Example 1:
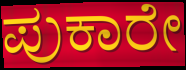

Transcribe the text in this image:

ಪುಕಾರೇ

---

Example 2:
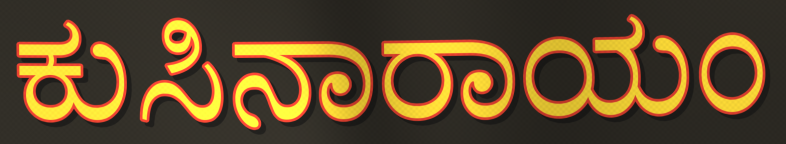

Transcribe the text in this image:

ಕುಸಿನಾರಾಯಂ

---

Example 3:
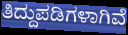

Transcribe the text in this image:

ತಿದ್ದುಪಡಿಗಳಾಗಿವೆ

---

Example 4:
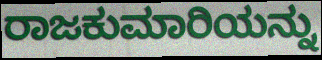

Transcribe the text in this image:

ರಾಜಕುಮಾರಿಯನ್ನು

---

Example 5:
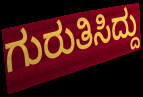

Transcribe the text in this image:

ಗುರುತಿಸಿದ್ದು